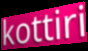
kottiri